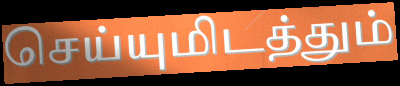
செய்யுமிடத்தும்